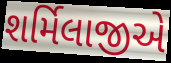
શર્મિલાજીએ